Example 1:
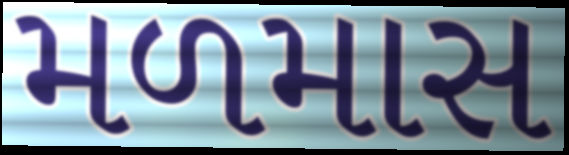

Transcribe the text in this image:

મળમાસ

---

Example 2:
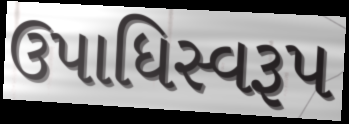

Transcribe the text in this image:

ઉપાધિસ્વરૂપ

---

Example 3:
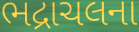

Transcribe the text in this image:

ભદ્રાચલના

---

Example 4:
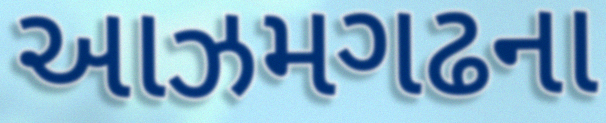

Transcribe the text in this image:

આઝમગઢના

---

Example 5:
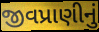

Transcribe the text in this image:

જીવપ્રાણીનું